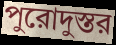
পুরোদুস্তর